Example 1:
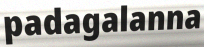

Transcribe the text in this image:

padagalanna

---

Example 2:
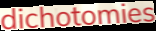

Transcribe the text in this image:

dichotomies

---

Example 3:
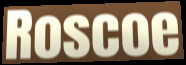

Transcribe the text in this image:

Roscoe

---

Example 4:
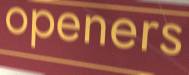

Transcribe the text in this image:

openers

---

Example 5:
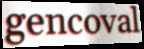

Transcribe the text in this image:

gencoval